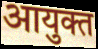
आयुक्‍त